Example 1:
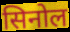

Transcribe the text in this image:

सिनोल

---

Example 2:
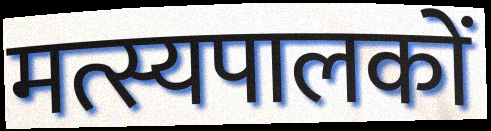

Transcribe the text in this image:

मत्स्यपालकों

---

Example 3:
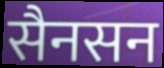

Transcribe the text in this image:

सैनसन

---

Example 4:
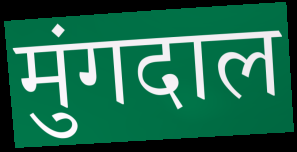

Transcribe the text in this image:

मुंगदाल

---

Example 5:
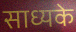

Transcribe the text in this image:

साध्यके